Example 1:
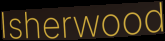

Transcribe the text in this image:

Isherwood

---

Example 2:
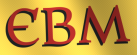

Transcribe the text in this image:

EBM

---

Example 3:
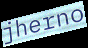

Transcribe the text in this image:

jherno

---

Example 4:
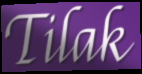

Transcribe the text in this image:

Tilak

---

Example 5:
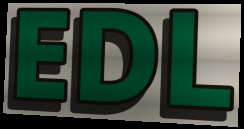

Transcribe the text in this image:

EDL